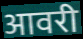
आवरी